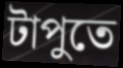
টাপুতে